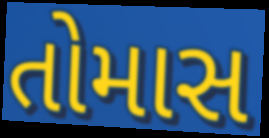
તોમાસ